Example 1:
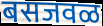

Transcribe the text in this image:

बसजवळ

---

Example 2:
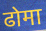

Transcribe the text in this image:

ढोमा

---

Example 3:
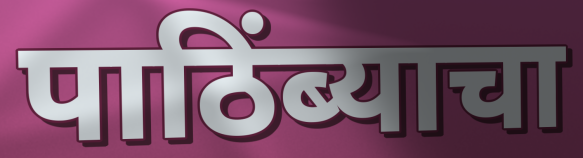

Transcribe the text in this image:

पाठिंब्याचा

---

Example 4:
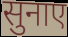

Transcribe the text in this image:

सुनाए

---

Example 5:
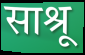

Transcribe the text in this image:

साश्रू